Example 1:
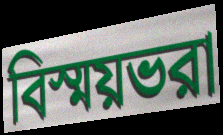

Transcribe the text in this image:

বিস্ময়ভরা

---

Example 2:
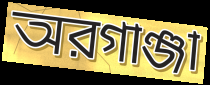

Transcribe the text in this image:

অরগাঞ্জা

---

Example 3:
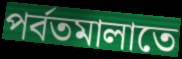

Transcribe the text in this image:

পর্বতমালাতে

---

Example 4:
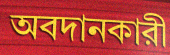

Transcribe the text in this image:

অবদানকারী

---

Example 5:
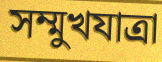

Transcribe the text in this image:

সম্মুখযাত্রা